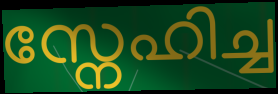
സ്നേഹിച്ച